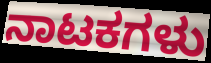
ನಾಟಕಗಳು